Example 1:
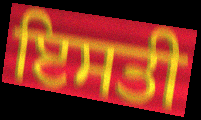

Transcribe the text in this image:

ਇਸਤੀ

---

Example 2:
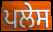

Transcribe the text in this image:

ਪਲੇਸ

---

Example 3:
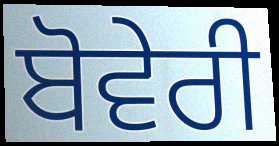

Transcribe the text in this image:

ਬੋਵੇਰੀ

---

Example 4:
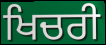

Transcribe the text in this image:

ਖਿਚਰੀ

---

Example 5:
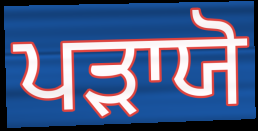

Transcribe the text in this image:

ਪੜਾਯੋ